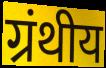
ग्रंथीय